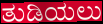
ತುಡಿಯಲು